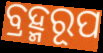
ବ୍ରହ୍ମରୂପ